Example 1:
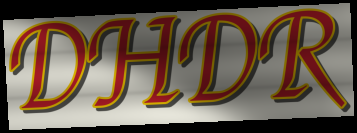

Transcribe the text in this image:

DHDR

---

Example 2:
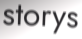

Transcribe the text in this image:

storys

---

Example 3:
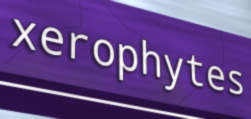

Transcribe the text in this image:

xerophytes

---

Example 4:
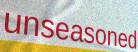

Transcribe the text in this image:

unseasoned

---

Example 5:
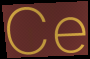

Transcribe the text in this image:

Ce